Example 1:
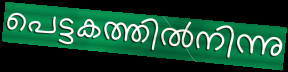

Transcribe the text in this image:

പെട്ടകത്തിൽനിന്നു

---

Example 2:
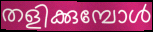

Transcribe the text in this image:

തളിക്കുമ്പോൾ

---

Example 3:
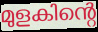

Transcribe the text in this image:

മുളകിന്റെ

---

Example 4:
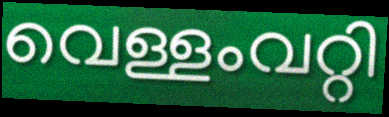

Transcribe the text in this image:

വെള്ളംവറ്റി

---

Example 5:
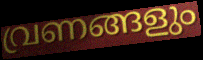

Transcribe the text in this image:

വ്രണങ്ങളും